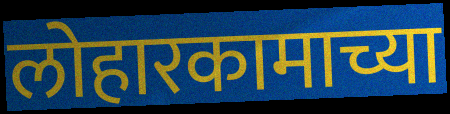
लोहारकामाच्या